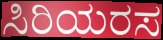
ಸಿರಿಯರಸ